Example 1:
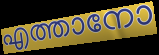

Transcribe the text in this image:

എത്താനോ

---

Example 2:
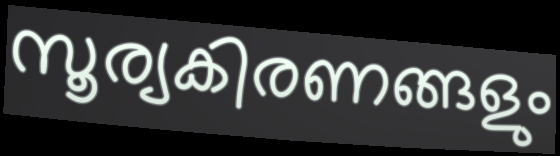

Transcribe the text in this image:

സൂര്യകിരണങ്ങളും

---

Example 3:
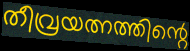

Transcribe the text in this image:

തീവ്രയത്നത്തിന്റെ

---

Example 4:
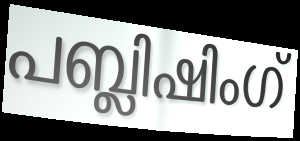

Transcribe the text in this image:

പബ്ലിഷിംഗ്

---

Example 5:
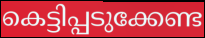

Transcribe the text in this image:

കെട്ടിപ്പടുക്കേണ്ട